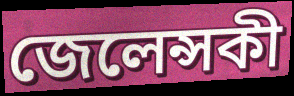
জেলেন্সকী